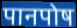
पानपोष